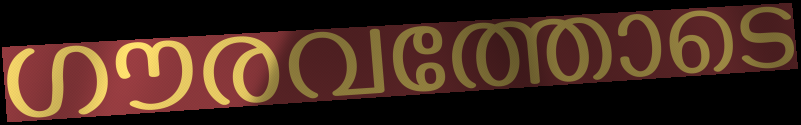
ഗൗരവത്തോടെ